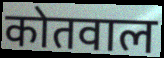
कोतवाल